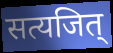
सत्यजित्